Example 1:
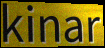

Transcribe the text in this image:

kinar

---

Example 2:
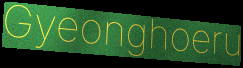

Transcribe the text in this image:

Gyeonghoeru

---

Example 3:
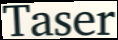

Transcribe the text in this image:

Taser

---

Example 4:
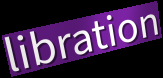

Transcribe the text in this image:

libration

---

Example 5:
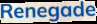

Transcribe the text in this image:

Renegade